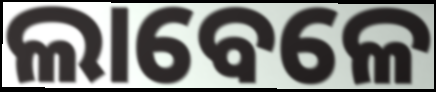
ଲାବେଳେ